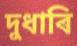
দুধাৰি